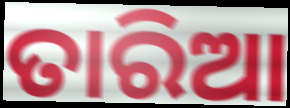
ତାରିଆ